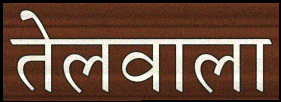
तेलवाला